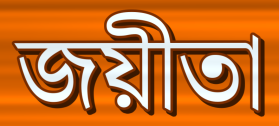
জয়ীতা